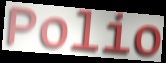
Polio